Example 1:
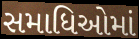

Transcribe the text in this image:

સમાધિઓમાં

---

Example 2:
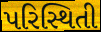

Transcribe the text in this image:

પરિસ્થિતી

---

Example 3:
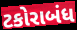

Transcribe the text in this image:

ટકોરાબંધ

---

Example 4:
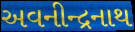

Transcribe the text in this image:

અવનીન્દ્રનાથ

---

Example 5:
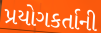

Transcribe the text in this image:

પ્રયોગકર્તાની